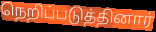
நெறிப்படுத்தினார்